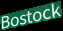
Bostock